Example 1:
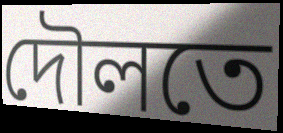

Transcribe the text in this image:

দৌলতে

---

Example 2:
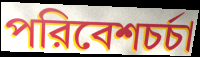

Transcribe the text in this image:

পরিবেশচর্চা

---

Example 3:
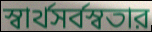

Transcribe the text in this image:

স্বার্থসর্বস্বতার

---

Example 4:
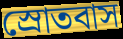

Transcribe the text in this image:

স্রোতবাস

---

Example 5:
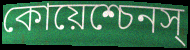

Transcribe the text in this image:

কোয়েশ্চেনস্